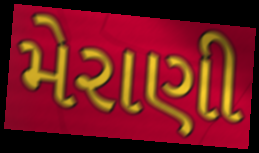
મેરાણી